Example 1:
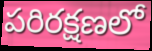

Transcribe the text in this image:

పరిరక్షణలో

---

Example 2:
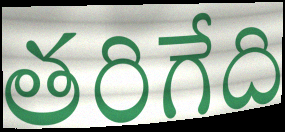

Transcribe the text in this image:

తరిగేది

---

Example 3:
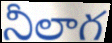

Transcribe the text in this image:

నీలాగ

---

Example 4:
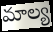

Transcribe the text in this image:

మాల్య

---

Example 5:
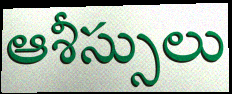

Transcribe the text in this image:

ఆశీస్సులు